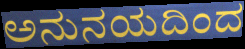
ಅನುನಯದಿಂದ